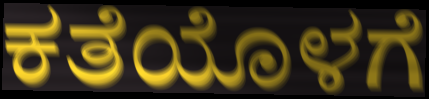
ಕತೆಯೊಳಗೆ